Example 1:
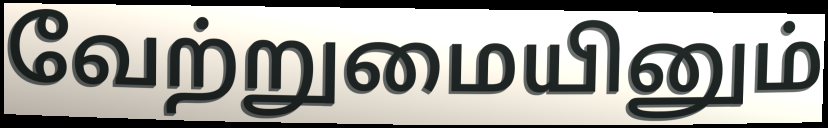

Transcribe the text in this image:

வேற்றுமையினும்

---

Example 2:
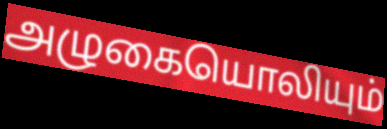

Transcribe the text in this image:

அழுகையொலியும்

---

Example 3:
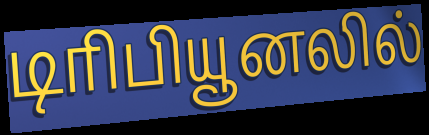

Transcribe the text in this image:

டிரிபியூனலில்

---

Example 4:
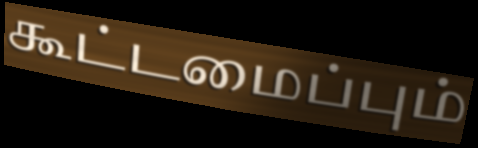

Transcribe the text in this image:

கூட்டமைப்பும்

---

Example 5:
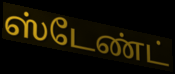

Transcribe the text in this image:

ஸ்டேண்ட்